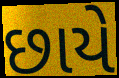
છાયે